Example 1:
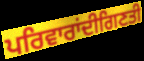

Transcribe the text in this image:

ਪਰਿਵਾਰਾਂਦੀਗਿਣਤੀ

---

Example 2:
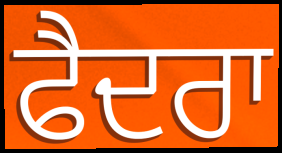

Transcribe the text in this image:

ਫੈਦਰਾ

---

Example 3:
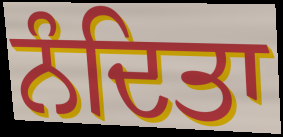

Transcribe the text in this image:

ਨੰਦਿਤਾ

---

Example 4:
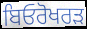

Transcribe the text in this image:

ਬਿਓਰੋਖਰੜ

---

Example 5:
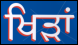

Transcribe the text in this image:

ਖਿੜਾਂ